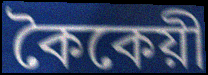
কৈকেয়ী